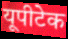
यूपीटेक